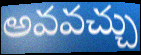
అవవచ్చు